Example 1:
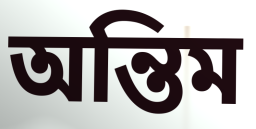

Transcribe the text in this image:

অন্তিম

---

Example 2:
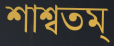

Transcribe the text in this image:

শাশ্বতম্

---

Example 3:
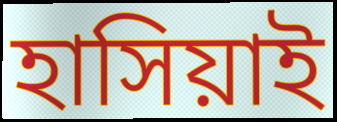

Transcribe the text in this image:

হাসিয়াই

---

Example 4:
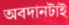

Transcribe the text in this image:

অবদানটাই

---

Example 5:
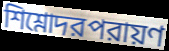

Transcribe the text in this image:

শিশ্নোদরপরায়ণ